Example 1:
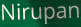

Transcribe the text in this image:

Nirupan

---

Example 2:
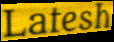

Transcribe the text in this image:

Latesh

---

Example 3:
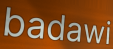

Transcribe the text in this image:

badawi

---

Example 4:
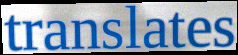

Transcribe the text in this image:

translates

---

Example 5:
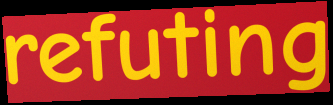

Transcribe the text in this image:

refuting